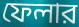
ফেলার